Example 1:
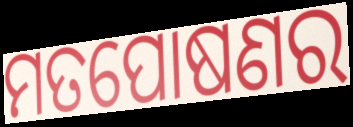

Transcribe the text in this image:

ମତପୋଷଣର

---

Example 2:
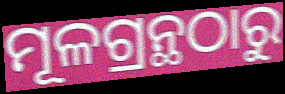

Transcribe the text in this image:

ମୂଳଗ୍ରନ୍ଥଠାରୁ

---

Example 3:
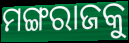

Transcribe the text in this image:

ମଙ୍ଗରାଜକୁ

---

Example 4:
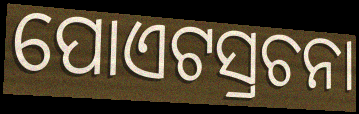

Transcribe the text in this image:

ପୋଏଟସ୍ରଚନା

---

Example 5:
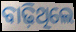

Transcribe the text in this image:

ବାଢ଼ିଥିଲେ